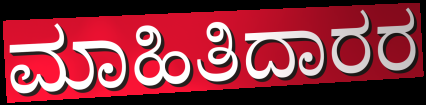
ಮಾಹಿತಿದಾರರ